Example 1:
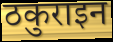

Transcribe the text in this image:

ठकुराइन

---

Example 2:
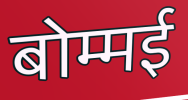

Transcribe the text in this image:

बोम्मई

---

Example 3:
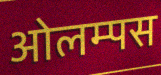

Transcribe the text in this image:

ओलम्पस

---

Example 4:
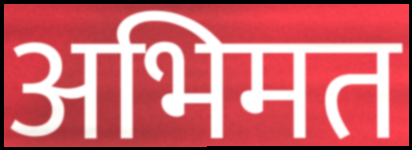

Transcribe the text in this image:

अभिमत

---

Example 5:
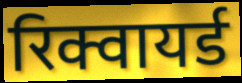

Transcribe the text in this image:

रिक्वायर्ड